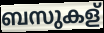
ബസുകള്